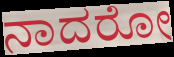
ನಾದರೋ